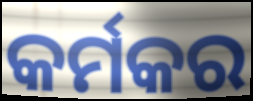
କର୍ମକର